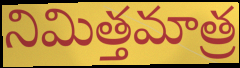
నిమిత్తమాత్ర